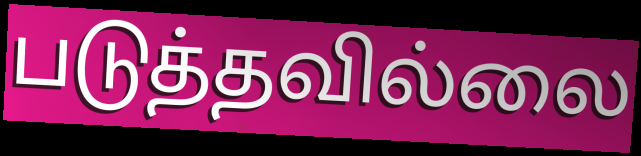
படுத்தவில்லை